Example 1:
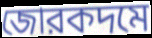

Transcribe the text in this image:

জোরকদমে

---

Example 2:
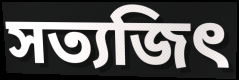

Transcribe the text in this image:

সত্যজিৎ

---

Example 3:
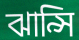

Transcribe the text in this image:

ঝান্সি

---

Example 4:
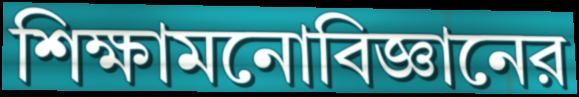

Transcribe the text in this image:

শিক্ষামনোবিজ্ঞানের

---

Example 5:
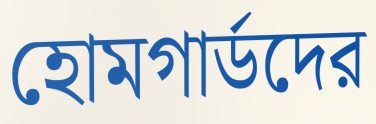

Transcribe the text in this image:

হোমগার্ডদের